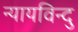
न्यायविन्दु